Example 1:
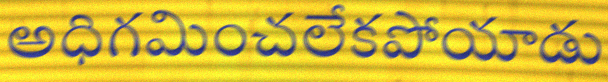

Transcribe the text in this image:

అధిగమించలేకపోయాడు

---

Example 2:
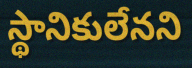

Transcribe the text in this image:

స్థానికులేనని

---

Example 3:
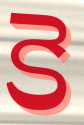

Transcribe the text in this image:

కె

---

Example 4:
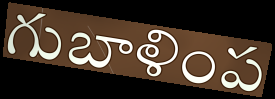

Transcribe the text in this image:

గుబాళింప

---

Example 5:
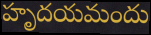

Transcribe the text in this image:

హృదయమందు